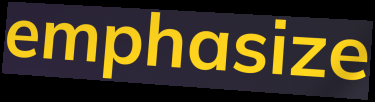
emphasize